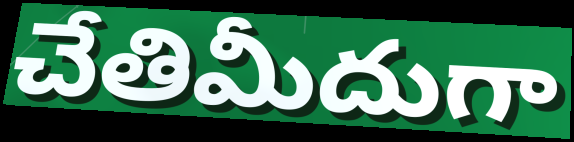
చేతిమీదుగా